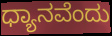
ಧ್ಯಾನವೆಂದು